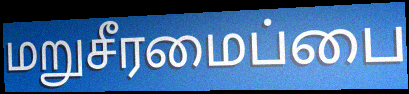
மறுசீரமைப்பை